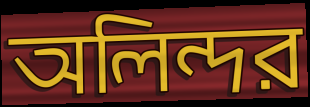
অলিন্দর